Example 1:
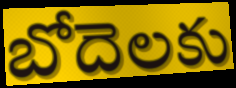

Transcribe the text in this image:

బోదెలకు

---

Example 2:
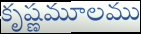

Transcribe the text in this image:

కృష్ణమూలము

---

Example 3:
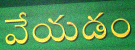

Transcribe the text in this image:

వేయడం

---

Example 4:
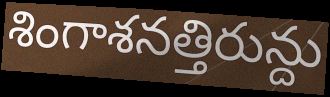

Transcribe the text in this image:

శింగాశనత్తిరున్దు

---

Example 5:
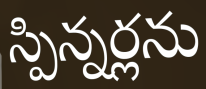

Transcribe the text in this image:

స్పిన్నర్లను